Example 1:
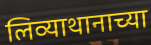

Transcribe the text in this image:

लिव्याथानाच्या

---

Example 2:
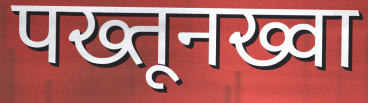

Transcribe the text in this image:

पख्तूनख्वा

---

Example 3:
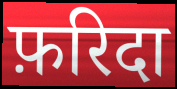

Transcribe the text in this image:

फ़रिदा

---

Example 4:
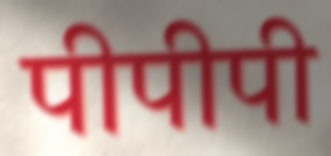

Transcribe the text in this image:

पीपीपी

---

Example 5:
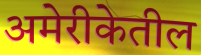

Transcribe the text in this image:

अमेरीकेतील